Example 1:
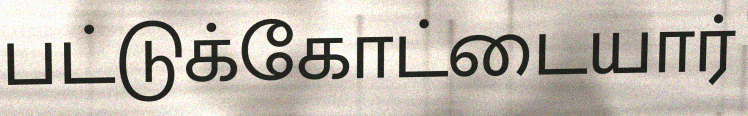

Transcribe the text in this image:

பட்டுக்கோட்டையார்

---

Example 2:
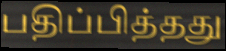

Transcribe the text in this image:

பதிப்பித்தது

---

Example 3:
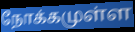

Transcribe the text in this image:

நோக்கமுள்ள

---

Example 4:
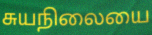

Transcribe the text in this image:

சுயநிலையை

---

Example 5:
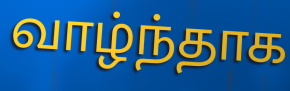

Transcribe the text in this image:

வாழ்ந்தாக